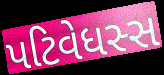
પટિવેધસ્સ